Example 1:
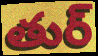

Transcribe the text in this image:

తుర్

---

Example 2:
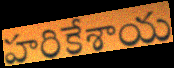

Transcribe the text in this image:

హరికేశాయ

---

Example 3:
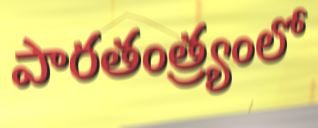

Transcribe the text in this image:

పారతంత్ర్యంలో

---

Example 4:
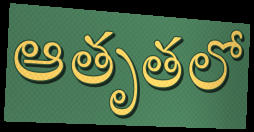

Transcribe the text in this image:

ఆతృతలో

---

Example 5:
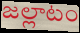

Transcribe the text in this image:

జల్లాటం